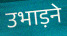
उभाड़ने